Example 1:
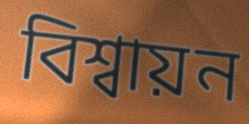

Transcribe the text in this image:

বিশ্বায়ন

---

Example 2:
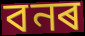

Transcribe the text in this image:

বনৰ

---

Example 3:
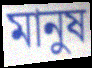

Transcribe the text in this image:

মানুষ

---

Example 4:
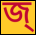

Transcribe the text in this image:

জ্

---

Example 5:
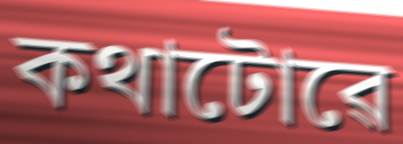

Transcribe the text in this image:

কথাটোৱে